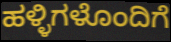
ಹಳ್ಳಿಗಳೊಂದಿಗೆ